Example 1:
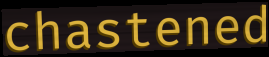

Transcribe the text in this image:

chastened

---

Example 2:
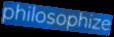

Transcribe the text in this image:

philosophize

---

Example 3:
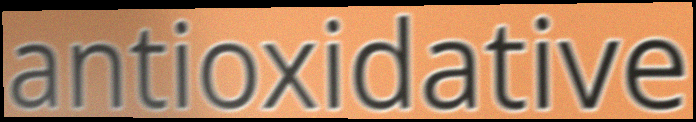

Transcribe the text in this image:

antioxidative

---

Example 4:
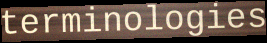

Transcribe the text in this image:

terminologies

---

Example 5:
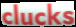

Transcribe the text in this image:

clucks